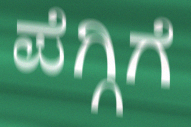
ಪೆಗ್ಗಿಗೆ